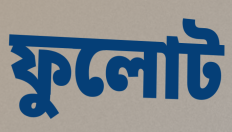
ফুলোট